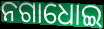
ନଗାଧୋଇ